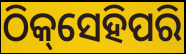
ଠିକ୍‌ସେହିପରି